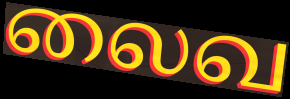
லைவ